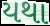
યથા